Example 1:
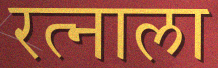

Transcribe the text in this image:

रत्नाला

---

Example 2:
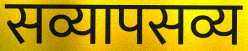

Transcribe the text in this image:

सव्यापसव्य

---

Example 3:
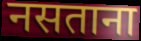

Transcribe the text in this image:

नसताना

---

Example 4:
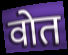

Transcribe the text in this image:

वोत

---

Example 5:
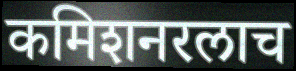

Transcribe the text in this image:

कमिशनरलाच